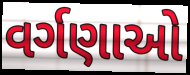
વર્ગણાઓ